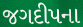
જગદીપના